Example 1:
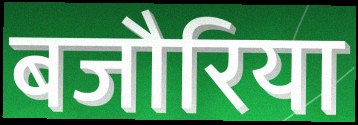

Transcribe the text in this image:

बजौरिया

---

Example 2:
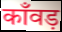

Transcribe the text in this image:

काँवड़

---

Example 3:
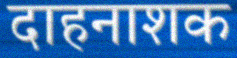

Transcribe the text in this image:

दाहनाशक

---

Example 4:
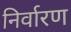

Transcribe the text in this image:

निर्वारण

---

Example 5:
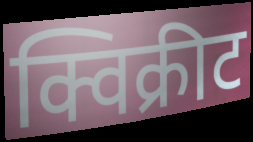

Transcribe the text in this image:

क्विक्रीट